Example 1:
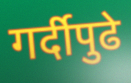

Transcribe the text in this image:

गर्दीपुढे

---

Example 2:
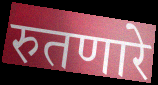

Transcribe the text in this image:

रुतणारे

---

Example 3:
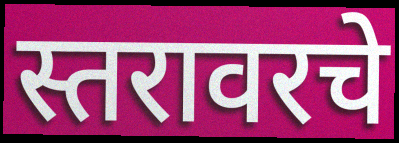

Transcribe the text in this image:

स्तरावरचे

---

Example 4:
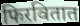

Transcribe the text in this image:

फिरवितात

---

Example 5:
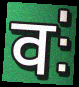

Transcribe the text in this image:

वः॑